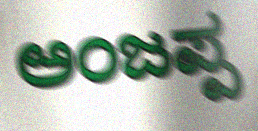
ಅಂಜಪ್ಪ